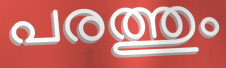
പരത്തും